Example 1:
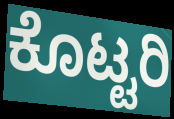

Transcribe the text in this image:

ಕೊಟ್ಟರಿ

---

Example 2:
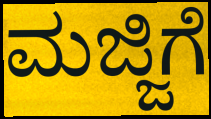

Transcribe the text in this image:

ಮಜ್ಜಿಗೆ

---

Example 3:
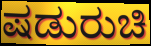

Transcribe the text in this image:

ಷಡುರುಚಿ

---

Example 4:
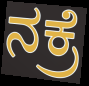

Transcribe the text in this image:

ನಕ್ರೆ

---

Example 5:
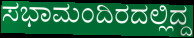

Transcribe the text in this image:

ಸಭಾಮಂದಿರದಲ್ಲಿದ್ದ